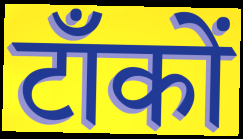
टाँकों